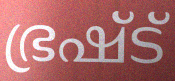
ഭ്രഷ്ട്